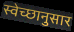
स्वेच्छानुसार